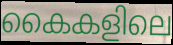
കൈകളിലെ